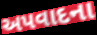
અપવાદના